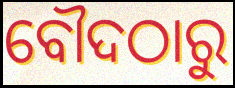
ବୌଦଠାରୁ